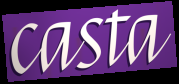
casta